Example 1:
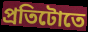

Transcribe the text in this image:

প্ৰতিটোতে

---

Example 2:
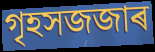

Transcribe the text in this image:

গৃহসজজাৰ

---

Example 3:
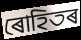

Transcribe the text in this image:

ৰোহিতৰ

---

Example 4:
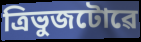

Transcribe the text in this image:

ত্ৰিভুজটোৱে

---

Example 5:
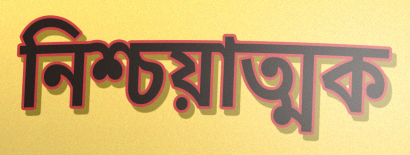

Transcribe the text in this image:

নিশ্চয়াত্মক